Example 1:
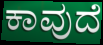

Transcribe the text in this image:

ಕಾವುದೆ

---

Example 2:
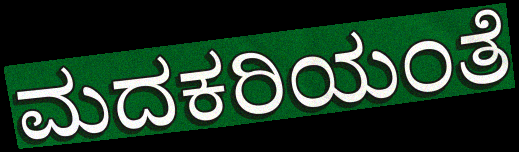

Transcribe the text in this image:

ಮದಕರಿಯಂತೆ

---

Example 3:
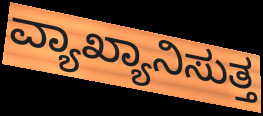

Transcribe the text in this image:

ವ್ಯಾಖ್ಯಾನಿಸುತ್ತ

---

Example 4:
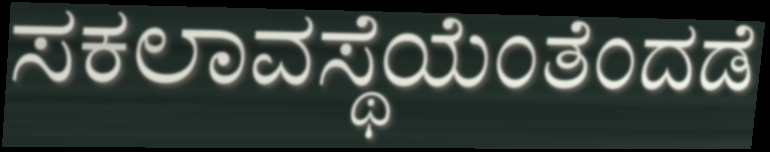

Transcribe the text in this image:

ಸಕಲಾವಸ್ಥೆಯೆಂತೆಂದಡೆ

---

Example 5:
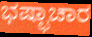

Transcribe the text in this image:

ಭಷ್ಟಾಚಾರ